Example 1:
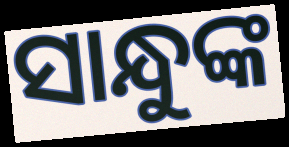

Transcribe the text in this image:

ସାନ୍ଧୁଙ୍କ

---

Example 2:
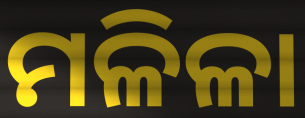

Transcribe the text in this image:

ମଳିଳା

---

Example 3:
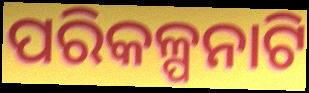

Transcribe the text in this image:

ପରିକଳ୍ପନାଟି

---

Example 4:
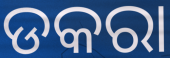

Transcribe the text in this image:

ଡକରା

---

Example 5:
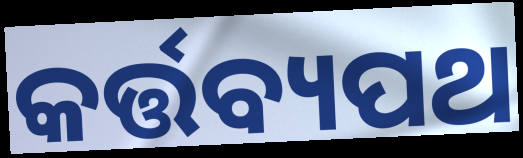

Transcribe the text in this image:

କର୍ତ୍ତବ୍ୟପଥ